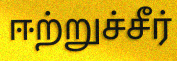
ஈற்றுச்சீர்